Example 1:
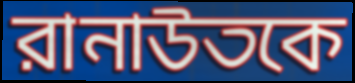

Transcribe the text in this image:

রানাউতকে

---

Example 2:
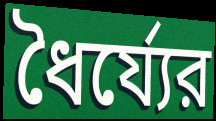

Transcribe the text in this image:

ধৈর্য্যের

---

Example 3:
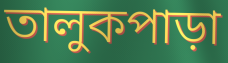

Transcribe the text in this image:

তালুকপাড়া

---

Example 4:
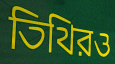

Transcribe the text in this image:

তিথিরও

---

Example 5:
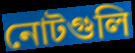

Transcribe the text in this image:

নোটগুলি